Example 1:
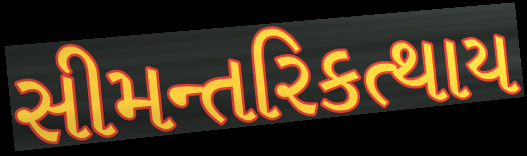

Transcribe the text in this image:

સીમન્તરિકત્થાય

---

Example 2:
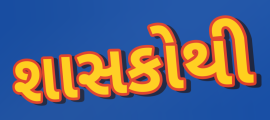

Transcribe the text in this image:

શાસકોથી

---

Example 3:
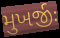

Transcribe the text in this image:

મુખર્જીઃ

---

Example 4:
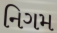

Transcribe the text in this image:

નિગમ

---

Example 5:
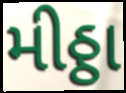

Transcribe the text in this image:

મીઠ્ઠા